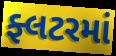
ફ્લટરમાં